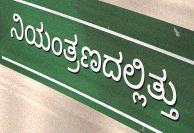
ನಿಯಂತ್ರಣದಲ್ಲಿತ್ತು